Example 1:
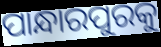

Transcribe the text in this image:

ପାନ୍ଧାରପୁରକୁ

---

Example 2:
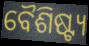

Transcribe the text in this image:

ବୈଶିଷ୍ଟ୍ୟ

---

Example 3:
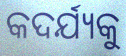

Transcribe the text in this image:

କଦର୍ଯ୍ୟକୁ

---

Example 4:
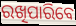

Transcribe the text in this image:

ରଖିପାରିବେ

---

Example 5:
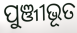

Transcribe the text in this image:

ପୁଞ୍ଜୀଭୂତ